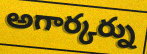
అగార్కర్ను